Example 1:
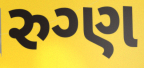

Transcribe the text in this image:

રુગ્ણ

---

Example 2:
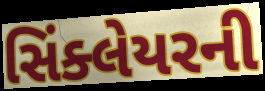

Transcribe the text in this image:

સિંક્લેયરની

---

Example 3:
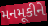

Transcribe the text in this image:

મનમૂકીને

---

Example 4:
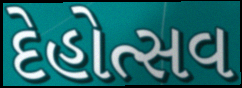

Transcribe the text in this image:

દેહોત્સવ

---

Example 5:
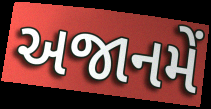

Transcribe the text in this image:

અજાનમેં